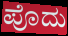
ಪೊದು